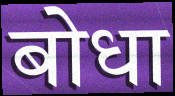
बोधा